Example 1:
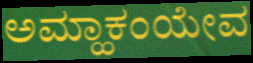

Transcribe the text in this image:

ಅಮ್ಹಾಕಂಯೇವ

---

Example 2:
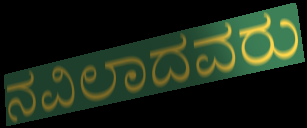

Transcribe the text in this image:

ನವಿಲಾದವರು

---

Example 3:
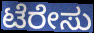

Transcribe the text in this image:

ಟೆರೇಸು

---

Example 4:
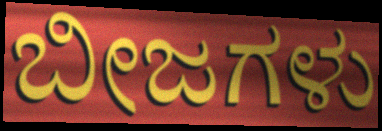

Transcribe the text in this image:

ಬೀಜಗಳು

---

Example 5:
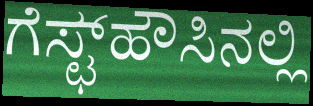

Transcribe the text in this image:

ಗೆಸ್ಟ್‌ಹೌಸಿನಲ್ಲಿ